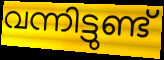
വന്നിട്ടുണ്ട്